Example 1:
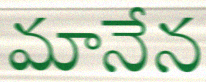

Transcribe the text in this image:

మానేన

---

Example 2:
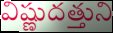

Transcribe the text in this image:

విష్ణుదత్తుని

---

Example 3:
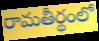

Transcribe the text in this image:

రామతీర్థంలో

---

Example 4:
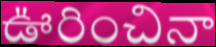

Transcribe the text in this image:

ఊరించినా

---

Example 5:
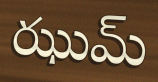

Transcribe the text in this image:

ఝుమ్